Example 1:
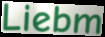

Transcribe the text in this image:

Liebm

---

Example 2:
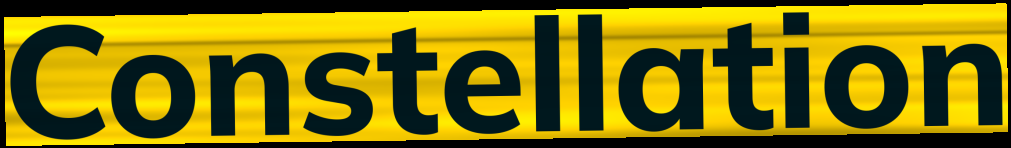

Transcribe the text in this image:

Constellation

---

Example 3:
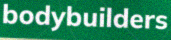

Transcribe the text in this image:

bodybuilders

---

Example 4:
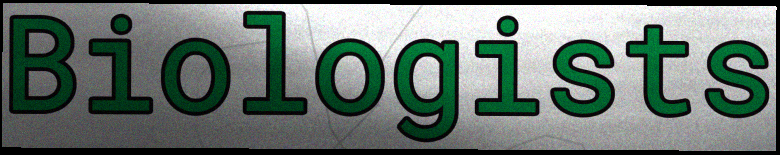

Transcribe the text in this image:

Biologists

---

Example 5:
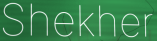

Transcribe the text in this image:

Shekher